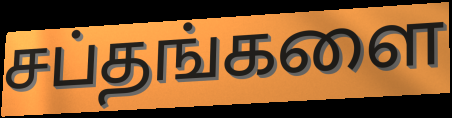
சப்தங்களை